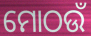
ମୋଠଉଁ